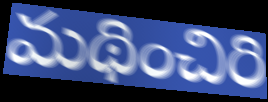
మథించిరి